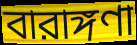
বারাঙ্গণা